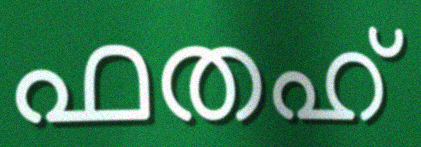
ഫതഹ്